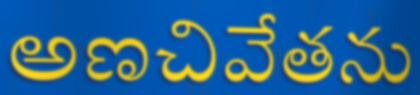
అణచివేతను